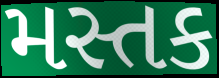
મસ્તક